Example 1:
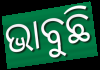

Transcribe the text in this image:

ଭାବୁଛି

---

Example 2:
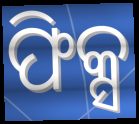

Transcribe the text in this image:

ଫିକ୍ସ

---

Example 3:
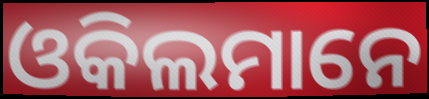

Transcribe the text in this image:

ଓକିଲମାନେ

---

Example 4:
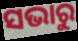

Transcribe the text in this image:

ସଭାରୁ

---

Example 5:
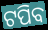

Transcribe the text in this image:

ଟପିବ